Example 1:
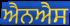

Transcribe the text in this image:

ਐਨਐਸ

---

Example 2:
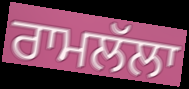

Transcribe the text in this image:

ਰਾਮਲੱਲਾ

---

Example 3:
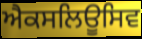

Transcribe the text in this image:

ਐਕਸਲਿਊਸਿਵ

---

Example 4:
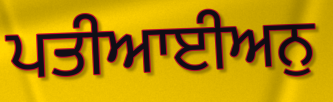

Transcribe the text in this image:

ਪਤੀਆਈਅਨੁ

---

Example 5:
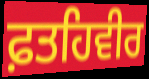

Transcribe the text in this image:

ਫ਼ਤਹਿਵੀਰ